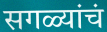
सगळ्यांचं